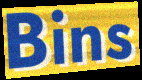
Bins